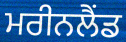
ਮਰੀਨਲੈਂਡ